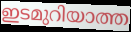
ഇടമുറിയാത്ത